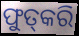
ଫୁତ୍‌କରି